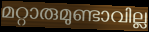
മറ്റാരുമുണ്ടാവില്ല